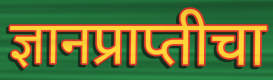
ज्ञानप्राप्तीचा